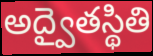
అద్వైతస్థితి